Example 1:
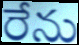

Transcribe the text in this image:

రేను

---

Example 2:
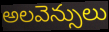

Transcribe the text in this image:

అలవెన్సులు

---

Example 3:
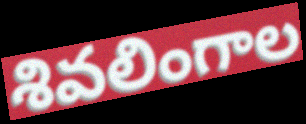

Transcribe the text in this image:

శివలింగాల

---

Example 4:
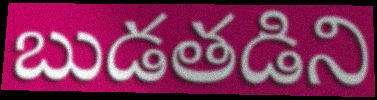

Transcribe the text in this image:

బుడతడిని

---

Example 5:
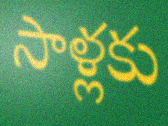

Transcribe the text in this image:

సాళ్లకు